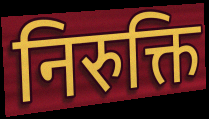
निरुक्ति